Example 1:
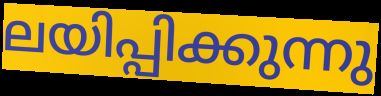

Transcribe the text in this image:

ലയിപ്പിക്കുന്നു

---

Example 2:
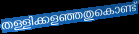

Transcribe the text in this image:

തള്ളിക്കളഞ്ഞതുകൊണ്ട്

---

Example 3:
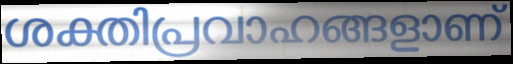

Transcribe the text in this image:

ശക്തിപ്രവാഹങ്ങളാണ്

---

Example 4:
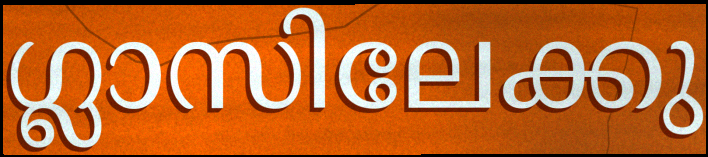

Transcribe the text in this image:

ഗ്ലാസിലേക്കു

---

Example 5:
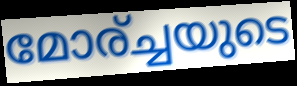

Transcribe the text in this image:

മോര്ച്ചയുടെ